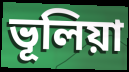
ভূলিয়া